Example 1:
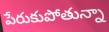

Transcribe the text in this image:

పేరుకుపోతున్నా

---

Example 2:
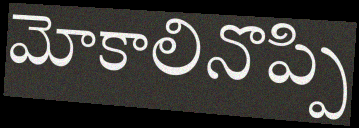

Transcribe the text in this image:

మోకాలినొప్పి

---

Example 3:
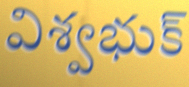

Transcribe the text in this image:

విశ్వభుక్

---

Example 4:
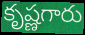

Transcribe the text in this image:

కృష్ణగారు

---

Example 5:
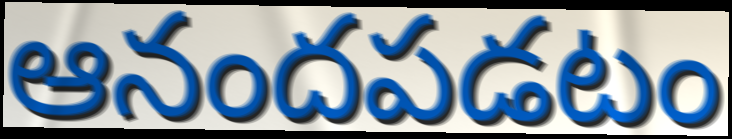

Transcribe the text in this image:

ఆనందపడటం